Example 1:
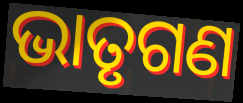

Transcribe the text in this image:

ଭାତୃଗଣ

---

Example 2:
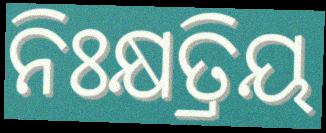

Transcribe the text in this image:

ନିଃକ୍ଷତ୍ରିୟ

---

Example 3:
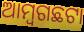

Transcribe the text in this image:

ଆମ୍ବଗଛଟା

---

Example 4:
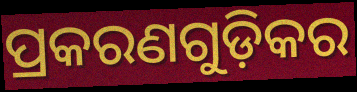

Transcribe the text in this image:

ପ୍ରକରଣଗୁଡ଼ିକର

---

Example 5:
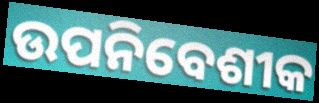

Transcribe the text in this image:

ଉପନିବେଶୀକ